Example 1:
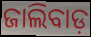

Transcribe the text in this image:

ଜାଲିବାଡ଼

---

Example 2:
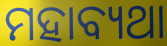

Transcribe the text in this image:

ମହାବ୍ୟଥା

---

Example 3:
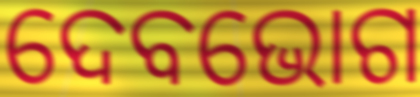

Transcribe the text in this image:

ଦେବଭୋଗ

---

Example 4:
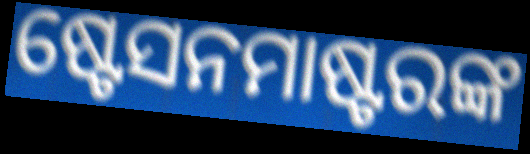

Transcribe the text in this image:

ଷ୍ଟେସନମାଷ୍ଟରଙ୍କ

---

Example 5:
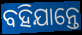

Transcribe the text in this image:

ବହିଯାନ୍ତେ